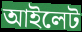
আইলেট